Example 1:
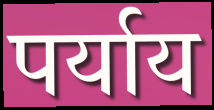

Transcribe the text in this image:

पर्याय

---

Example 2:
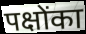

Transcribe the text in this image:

पक्षोंका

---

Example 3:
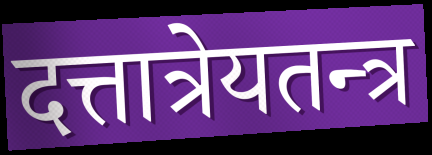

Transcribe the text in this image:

दत्तात्रेयतन्त्र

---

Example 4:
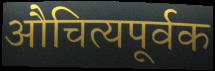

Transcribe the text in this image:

औचित्यपूर्वक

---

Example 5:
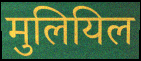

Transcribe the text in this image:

मुलियिल